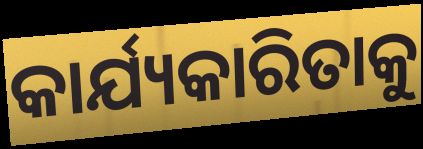
କାର୍ଯ୍ୟକାରିତାକୁ